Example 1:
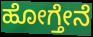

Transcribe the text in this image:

ಹೋಗ್ತೇನೆ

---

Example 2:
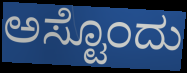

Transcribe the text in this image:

ಅಸ್ಟೊಂದು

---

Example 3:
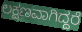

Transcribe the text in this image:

ಲಕ್ಷಣವಾಗಿದ್ದರೆ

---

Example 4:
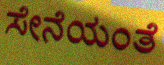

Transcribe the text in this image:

ಸೇನೆಯಂತೆ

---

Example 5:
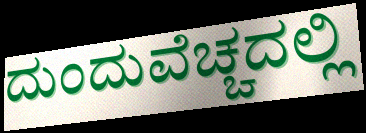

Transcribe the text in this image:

ದುಂದುವೆಚ್ಚದಲ್ಲಿ